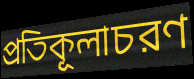
প্রতিকূলাচরণ